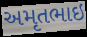
અમૃતભાઇ